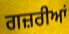
ਗਜ਼ਰੀਆਂ